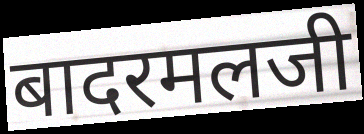
बादरमलजी